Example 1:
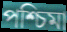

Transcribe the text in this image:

পশ্চিমা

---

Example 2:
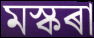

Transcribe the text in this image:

মস্কৰা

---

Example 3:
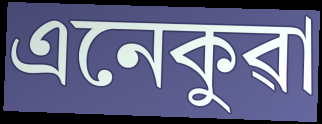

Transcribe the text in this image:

এনেকুৱা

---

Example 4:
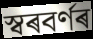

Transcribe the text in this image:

স্বৰবৰ্ণৰ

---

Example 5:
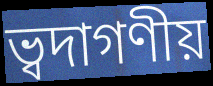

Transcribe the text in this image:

ভ্বদাগণীয়